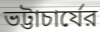
ভট্টাচার্যের